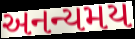
અનન્યમય